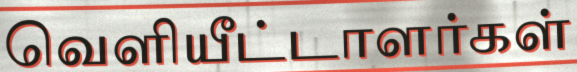
வெளியீட்டாளர்கள்